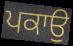
ਪਕਾਉ